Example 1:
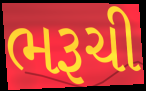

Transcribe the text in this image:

ભરૂચી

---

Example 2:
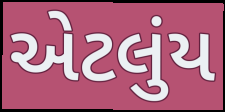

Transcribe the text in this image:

એટલુંય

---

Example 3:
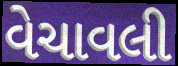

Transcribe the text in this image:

વેચાવલી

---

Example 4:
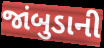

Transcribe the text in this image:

જાંબુડાની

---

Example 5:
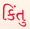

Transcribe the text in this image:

કિંતુ